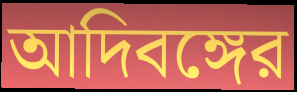
আদিবঙ্গের